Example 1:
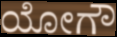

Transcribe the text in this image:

ಯೋಗೌ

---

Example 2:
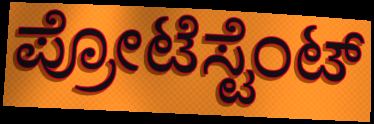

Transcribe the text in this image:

ಪ್ರೋಟೆಸ್ಟೆಂಟ್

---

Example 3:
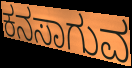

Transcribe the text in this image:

ಕನಸಾಗುವ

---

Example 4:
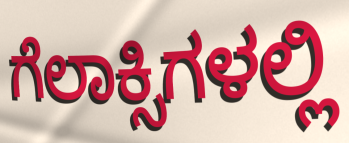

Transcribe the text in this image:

ಗೆಲಾಕ್ಸಿಗಳಲ್ಲಿ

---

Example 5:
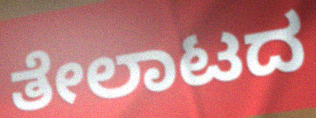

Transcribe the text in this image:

ತೇಲಾಟದ